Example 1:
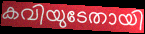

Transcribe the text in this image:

കവിയുടേതായി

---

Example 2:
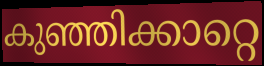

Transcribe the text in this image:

കുഞ്ഞിക്കാറ്റെ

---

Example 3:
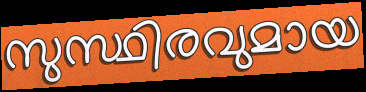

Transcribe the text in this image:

സുസ്ഥിരവുമായ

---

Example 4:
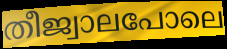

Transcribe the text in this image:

തീജ്വാലപോലെ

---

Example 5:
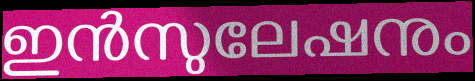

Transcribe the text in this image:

ഇൻസുലേഷനും